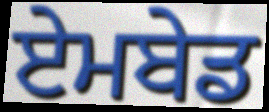
ਏਮਬੇਡ